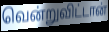
வென்றுவிட்டான்